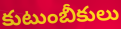
కుటుంబీకులు